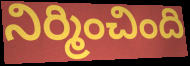
నిర్మించింది